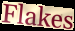
Flakes